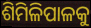
ଶିମିଳିପାଳକୁ